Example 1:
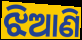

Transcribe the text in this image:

ଝିଆଣି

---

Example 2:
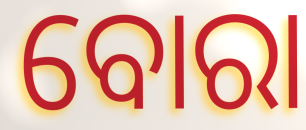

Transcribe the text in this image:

ବୋରା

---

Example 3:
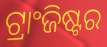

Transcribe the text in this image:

ଟ୍ରାଂଜିଷ୍ଟର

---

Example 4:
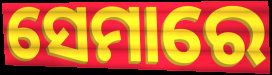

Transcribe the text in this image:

ସେମାରେ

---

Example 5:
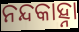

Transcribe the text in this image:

ନନ୍ଦକାହ୍ନା